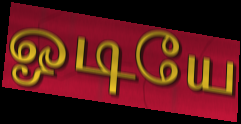
ஓடியே